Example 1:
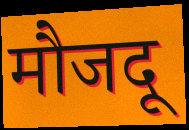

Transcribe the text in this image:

मौजदू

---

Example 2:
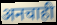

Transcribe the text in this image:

अनचाही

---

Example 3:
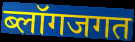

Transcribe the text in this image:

ब्लॉगजगत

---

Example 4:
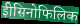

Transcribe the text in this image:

ईोसिनोफिलिक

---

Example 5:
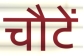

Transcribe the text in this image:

चौटें